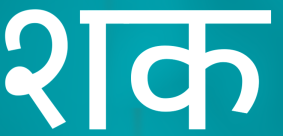
शक